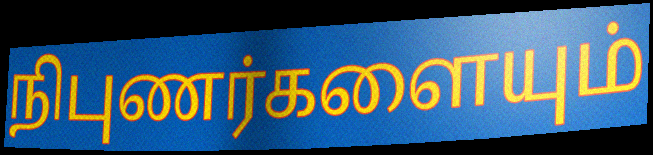
நிபுணர்களையும்